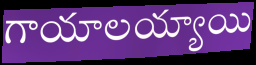
గాయాలయ్యాయి